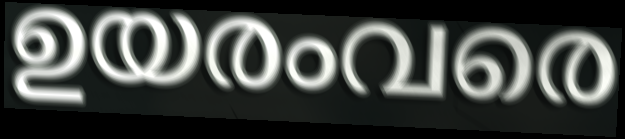
ഉയരംവരെ